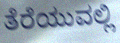
ತೆರೆಯುವಲ್ಲಿ